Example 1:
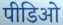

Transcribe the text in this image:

पीडिओ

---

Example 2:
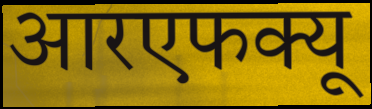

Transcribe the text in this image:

आरएफक्यू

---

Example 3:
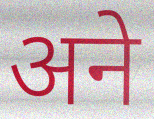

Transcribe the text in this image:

अने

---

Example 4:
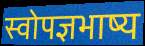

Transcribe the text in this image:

स्वोपज्ञभाष्य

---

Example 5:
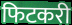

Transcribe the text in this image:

फिटकरी